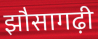
झौसागढ़ी